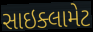
સાઇક્લામેટ